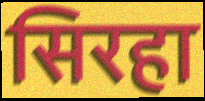
सिरहा